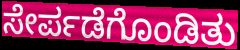
ಸೇರ್ಪಡೆಗೊಂಡಿತು